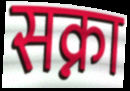
सक्ना